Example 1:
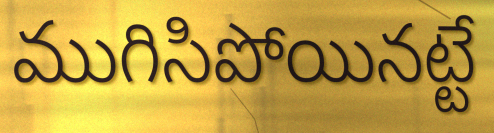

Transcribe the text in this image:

ముగిసిపోయినట్టే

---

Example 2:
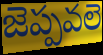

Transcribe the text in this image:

జెప్పవలె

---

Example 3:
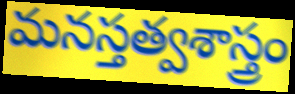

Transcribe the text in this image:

మనస్తత్వశాస్త్రం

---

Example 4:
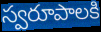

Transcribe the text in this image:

స్వరూపాలకి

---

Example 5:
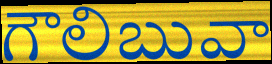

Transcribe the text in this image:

గౌలిబువా